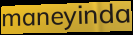
maneyinda